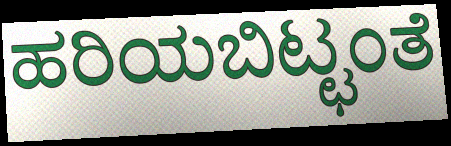
ಹರಿಯಬಿಟ್ಟಂತೆ